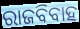
ରାଜବିବାହ